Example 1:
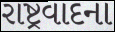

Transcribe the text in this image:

રાષ્ટ્રવાદના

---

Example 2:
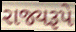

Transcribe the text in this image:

રાજ્યરૂપે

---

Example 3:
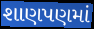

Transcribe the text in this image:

શાણપણમાં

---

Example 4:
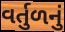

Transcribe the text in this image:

વર્તુળનું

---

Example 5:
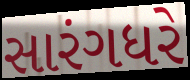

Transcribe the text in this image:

સારંગધરે